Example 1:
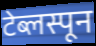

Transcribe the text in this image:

टेब्लस्पून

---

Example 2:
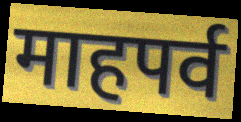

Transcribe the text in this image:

माहपर्व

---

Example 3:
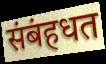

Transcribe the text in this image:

संबंहधत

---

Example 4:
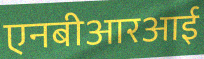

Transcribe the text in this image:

एनबीआरआई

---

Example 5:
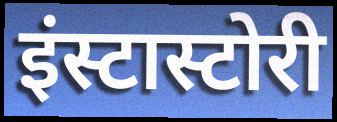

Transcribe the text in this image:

इंस्टास्टोरी